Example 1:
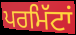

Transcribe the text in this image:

ਪਰਮਿੱਟਾਂ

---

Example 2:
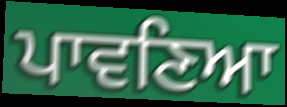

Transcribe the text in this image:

ਪਾਵਣਿਆ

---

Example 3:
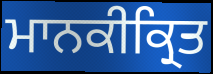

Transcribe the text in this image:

ਮਾਨਕੀਕ੍ਰਿਤ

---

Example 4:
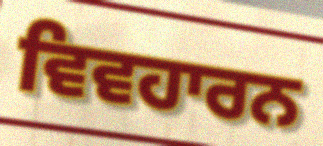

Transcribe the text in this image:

ਵਿਵਹਾਰਨ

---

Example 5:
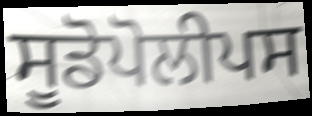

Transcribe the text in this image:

ਸੂਡੋਪੋਲੀਪਸ